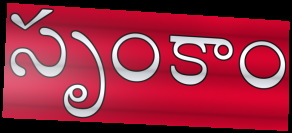
సృంకాం